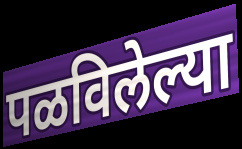
पळविलेल्या